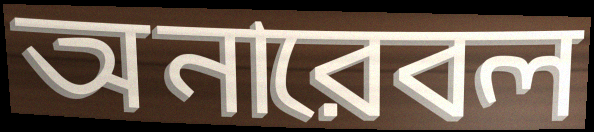
অনারেবল